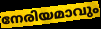
നേരിയമാവും